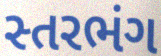
સ્તરભંગ